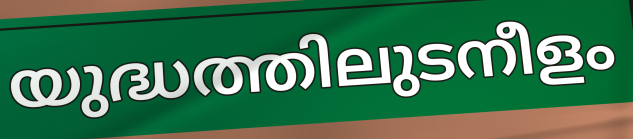
യുദ്ധത്തിലുടനീളം